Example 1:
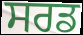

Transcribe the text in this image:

ਸਰਡ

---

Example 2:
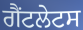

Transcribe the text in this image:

ਗੈਂਟਲੇਟਸ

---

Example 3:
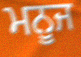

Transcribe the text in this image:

ਮਨੂਜ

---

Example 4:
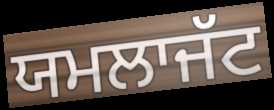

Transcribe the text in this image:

ਯਮਲਾਜੱਟ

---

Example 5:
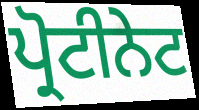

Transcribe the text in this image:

ਪ੍ਰੋਟੀਨੇਟ